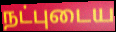
நட்புடைய